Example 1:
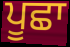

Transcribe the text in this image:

ਪੂਛਾ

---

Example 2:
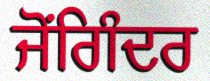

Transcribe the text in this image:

ਜੋਂਗਿੰਦਰ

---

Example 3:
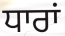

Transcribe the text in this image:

ਧਾਰਾਂ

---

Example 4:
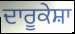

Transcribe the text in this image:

ਦਾਰੂਕੇਸ਼ਾ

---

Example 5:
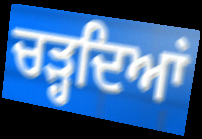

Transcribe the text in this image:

ਚੜ੍ਹਦਿਆਂ